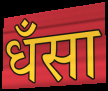
धँसा